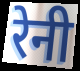
रेनी